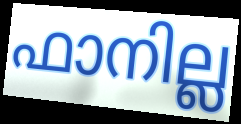
ഫാനില്ല